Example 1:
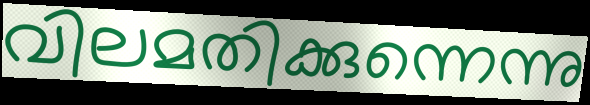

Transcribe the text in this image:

വിലമതിക്കുന്നെന്നു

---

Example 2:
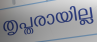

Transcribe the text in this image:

തൃപ്തരായില്ല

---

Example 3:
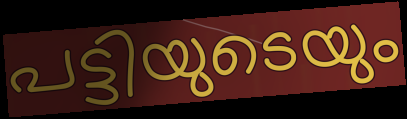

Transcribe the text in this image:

പട്ടിയുടെയും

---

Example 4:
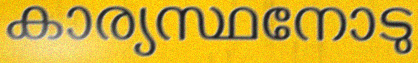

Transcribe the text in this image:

കാര്യസ്ഥനോടു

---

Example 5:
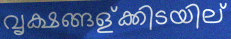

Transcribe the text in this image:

വൃക്ഷങ്ങള്ക്കിടയില്